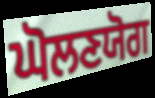
ਘੋਲਣਯੋਗ